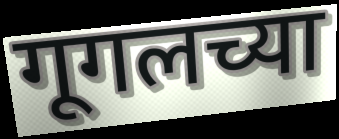
गूगलच्या